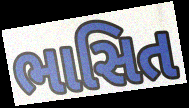
ભાસિત